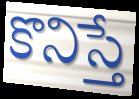
కొనిస్తే